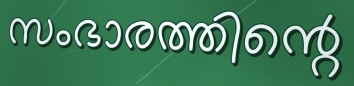
സംഭാരത്തിന്റെ